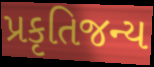
પ્રકૃતિજન્ય